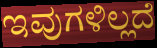
ಇವುಗಳಿಲ್ಲದೆ